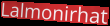
Lalmonirhat